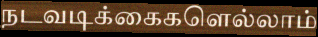
நடவடிக்கைகளெல்லாம்